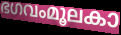
ഭഗവംമൂലകാ